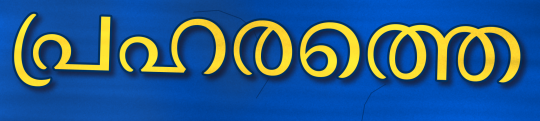
പ്രഹരത്തെ